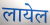
लायेल